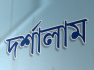
দর্শালাম